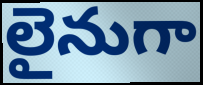
లైనుగా